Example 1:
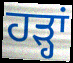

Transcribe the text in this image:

ਹਡ਼੍ਹਾਂ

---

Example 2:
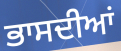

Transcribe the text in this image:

ਭਾਸਦੀਆਂ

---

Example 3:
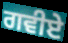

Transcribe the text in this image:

ਗਵੀਏ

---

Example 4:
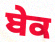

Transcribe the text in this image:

ਬੇਕ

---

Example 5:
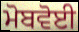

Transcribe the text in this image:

ਮੋਬਵੋਈ